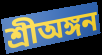
শ্রীঅঙ্গন